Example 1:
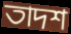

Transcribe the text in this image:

তাদশ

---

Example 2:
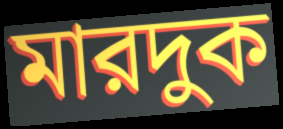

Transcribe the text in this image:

মারদুক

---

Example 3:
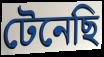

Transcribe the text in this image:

টেনেছি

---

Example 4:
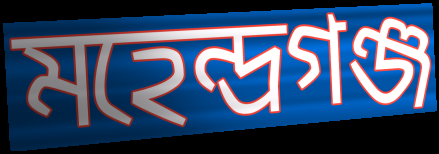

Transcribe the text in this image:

মহেন্দ্রগঞ্জ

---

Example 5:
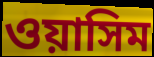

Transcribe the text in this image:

ওয়াসিম